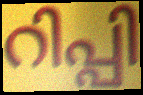
റിപ്പി